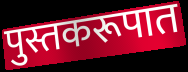
पुस्तकरूपात